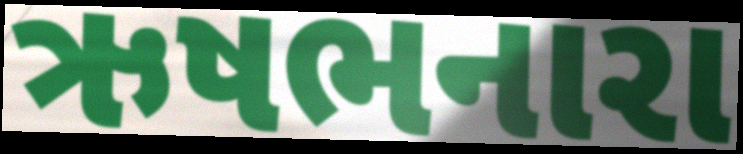
ઋષભનારા